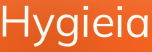
Hygieia